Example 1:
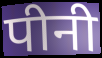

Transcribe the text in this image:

पीनी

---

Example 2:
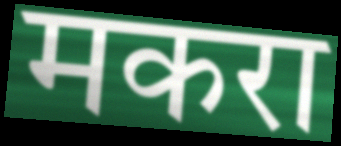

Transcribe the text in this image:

मकरा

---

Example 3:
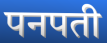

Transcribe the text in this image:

पनपती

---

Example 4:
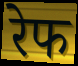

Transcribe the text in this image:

रेफ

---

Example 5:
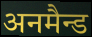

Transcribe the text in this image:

अनमैन्ड